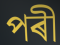
পৰী